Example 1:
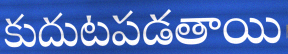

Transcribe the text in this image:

కుదుటపడతాయి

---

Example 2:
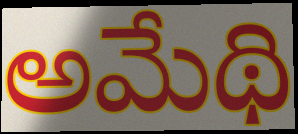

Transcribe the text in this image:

అమేథి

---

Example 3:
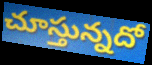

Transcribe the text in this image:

చూస్తున్నదో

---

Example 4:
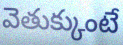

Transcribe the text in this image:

వెతుక్కుంటే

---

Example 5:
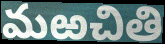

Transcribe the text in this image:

మఱచితి